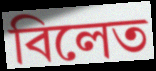
বিলেত